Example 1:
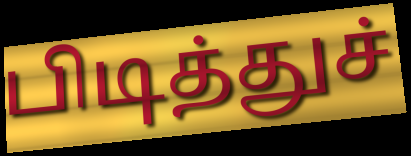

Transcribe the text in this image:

பிடித்துச்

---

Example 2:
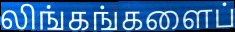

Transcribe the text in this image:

லிங்கங்களைப்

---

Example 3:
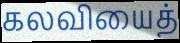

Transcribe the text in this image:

கலவியைத்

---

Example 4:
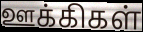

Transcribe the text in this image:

ஊக்கிகள்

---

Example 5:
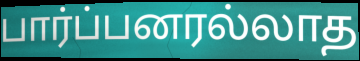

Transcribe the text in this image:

பார்ப்பனரல்லாத